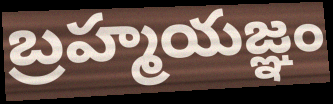
బ్రహ్మయజ్ఞం